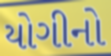
યોગીનો